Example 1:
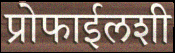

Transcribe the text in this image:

प्रोफाईलशी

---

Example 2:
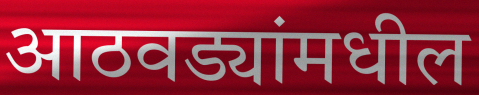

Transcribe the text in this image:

आठवड्यांमधील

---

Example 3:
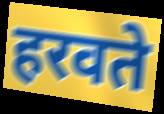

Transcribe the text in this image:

हरवते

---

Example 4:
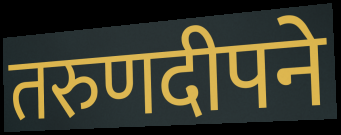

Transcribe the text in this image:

तरुणदीपने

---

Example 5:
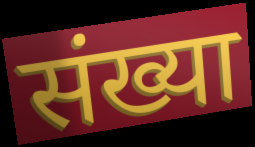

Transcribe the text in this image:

संख्या